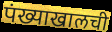
पंख्याखालची